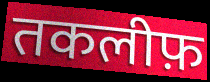
तकलीफ़